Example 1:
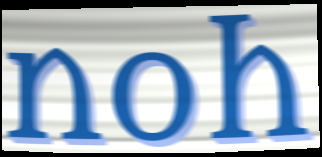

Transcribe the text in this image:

noh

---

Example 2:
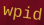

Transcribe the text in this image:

wpid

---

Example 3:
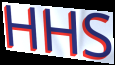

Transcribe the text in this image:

HHS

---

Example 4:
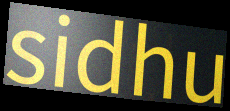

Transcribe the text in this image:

sidhu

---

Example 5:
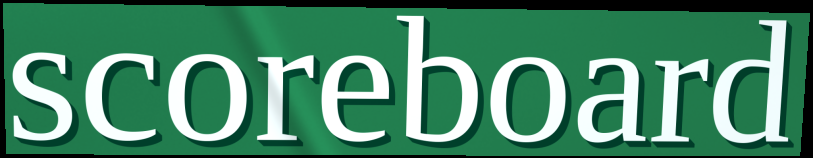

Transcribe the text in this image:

scoreboard